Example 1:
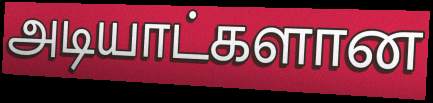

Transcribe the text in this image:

அடியாட்களான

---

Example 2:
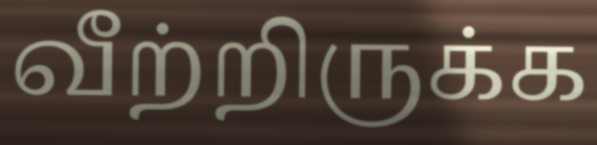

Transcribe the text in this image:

வீற்றிருக்க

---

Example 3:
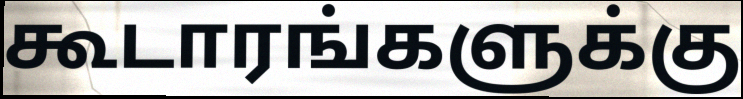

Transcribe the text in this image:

கூடாரங்களுக்கு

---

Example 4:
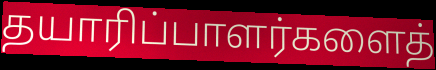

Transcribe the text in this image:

தயாரிப்பாளர்களைத்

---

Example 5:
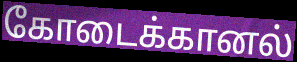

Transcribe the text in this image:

கோடைக்கானல்